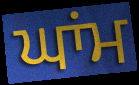
ਘਾਂਮ